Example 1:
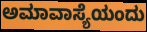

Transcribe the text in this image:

ಅಮಾವಾಸ್ಯೆಯಂದು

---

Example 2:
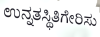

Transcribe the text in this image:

ಉನ್ನತಸ್ಥಿತಿಗೇರಿಸು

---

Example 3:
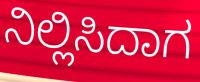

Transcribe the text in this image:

ನಿಲ್ಲಿಸಿದಾಗ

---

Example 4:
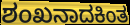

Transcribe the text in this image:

ಶಂಖನಾದಕಿಂತ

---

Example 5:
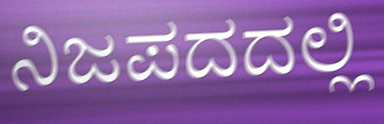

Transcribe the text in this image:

ನಿಜಪದದಲ್ಲಿ